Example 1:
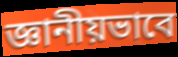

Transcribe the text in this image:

জ্ঞানীয়ভাবে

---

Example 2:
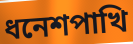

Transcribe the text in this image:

ধনেশপাখি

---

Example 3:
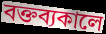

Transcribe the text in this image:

বক্তব্যকালে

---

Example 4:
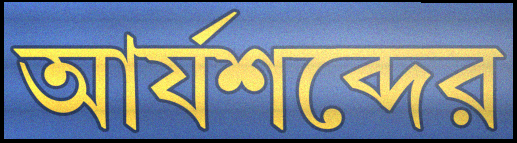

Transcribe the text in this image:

আর্যশব্দের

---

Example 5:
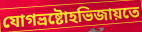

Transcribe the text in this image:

যোগভ্রষ্টোহভিজায়তে